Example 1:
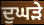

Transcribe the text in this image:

ਦੁਘੜੇ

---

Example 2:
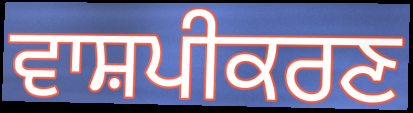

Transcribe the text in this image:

ਵਾਸ਼ਪੀਕਰਣ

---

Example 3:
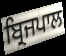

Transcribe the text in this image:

ਬ੍ਰਿਜਪਾਲ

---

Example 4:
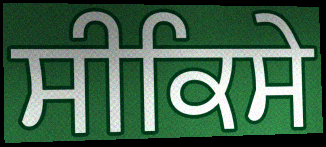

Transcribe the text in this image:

ਸੀਕਿਸੇ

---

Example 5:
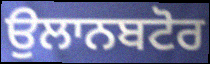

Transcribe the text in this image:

ਉਲਾਨਬਟੋਰ